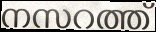
നസറത്ത്